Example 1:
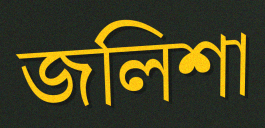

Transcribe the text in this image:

জলিশা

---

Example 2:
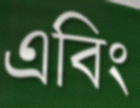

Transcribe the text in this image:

এবিং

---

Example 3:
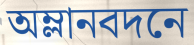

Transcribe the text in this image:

অম্লানবদনে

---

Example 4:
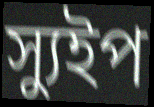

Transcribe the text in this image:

স্যুইপ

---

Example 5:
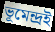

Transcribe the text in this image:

ভূমেন্দ্রই